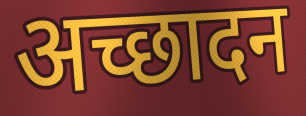
अच्छादन